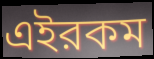
এইরকম